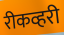
रीकव्हरी